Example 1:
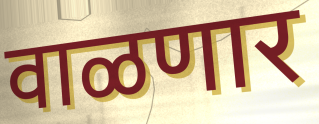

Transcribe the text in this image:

वाळणार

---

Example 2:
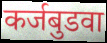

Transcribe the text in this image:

कर्जबुडवा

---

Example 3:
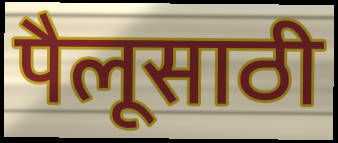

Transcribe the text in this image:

पैलूसाठी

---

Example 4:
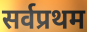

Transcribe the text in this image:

सर्वप्रथम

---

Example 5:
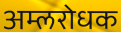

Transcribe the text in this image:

अम्लरोधक